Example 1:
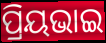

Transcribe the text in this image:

ପ୍ରିୟଭାଇ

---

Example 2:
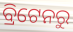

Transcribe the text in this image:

ବ୍ରିଟେନରୁ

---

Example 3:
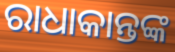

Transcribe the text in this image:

ରାଧାକାନ୍ତଙ୍କ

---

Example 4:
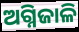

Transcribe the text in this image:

ଅଗ୍ନିଜାଳି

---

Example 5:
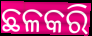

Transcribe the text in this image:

ଛଳକରି